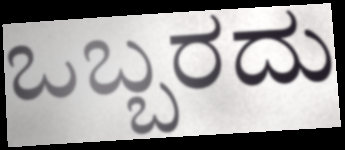
ಒಬ್ಬರದು